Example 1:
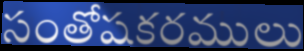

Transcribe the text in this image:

సంతోషకరములు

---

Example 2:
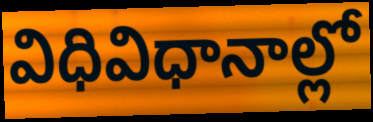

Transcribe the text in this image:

విధివిధానాల్లో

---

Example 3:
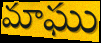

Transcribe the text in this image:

మాఘు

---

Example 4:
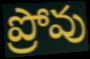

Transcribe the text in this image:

ప్రోవు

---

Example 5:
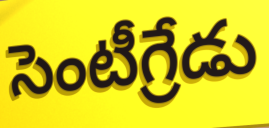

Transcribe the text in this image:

సెంటీగ్రేడు